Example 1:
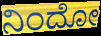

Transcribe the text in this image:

ನಿಂದೋ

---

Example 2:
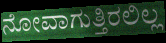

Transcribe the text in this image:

ನೋವಾಗುತ್ತಿರಲಿಲ್ಲ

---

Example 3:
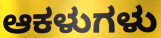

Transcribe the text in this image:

ಆಕಳುಗಳು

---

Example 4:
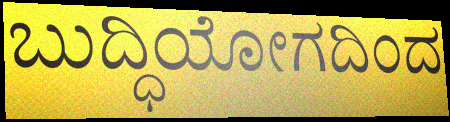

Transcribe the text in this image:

ಬುದ್ಧಿಯೋಗದಿಂದ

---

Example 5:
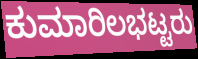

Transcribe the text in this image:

ಕುಮಾರಿಲಭಟ್ಟರು